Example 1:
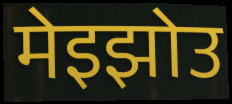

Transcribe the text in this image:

मेइझोउ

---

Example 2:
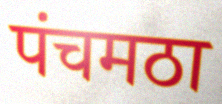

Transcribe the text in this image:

पंचमठा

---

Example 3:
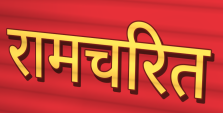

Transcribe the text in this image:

रामचरित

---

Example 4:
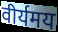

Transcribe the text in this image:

वीर्यमय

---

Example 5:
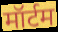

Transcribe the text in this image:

मॉर्टम